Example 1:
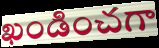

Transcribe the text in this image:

ఖండించగా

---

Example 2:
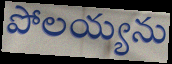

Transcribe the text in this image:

పోలయ్యను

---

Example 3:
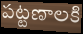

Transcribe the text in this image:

పట్టణాలకి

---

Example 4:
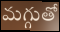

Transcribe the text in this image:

మగ్గుతో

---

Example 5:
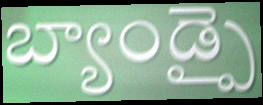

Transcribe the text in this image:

బ్యాండ్పై